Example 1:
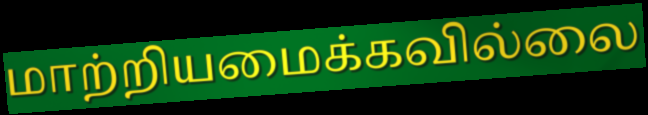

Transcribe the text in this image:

மாற்றியமைக்கவில்லை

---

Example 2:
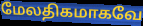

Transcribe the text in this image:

மேலதிகமாகவே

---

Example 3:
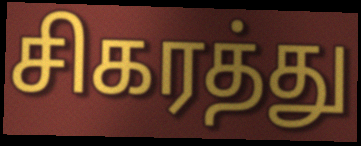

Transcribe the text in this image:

சிகரத்து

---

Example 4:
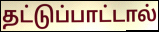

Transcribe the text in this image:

தட்டுப்பாட்டால்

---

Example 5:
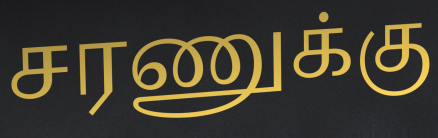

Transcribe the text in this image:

சரணுக்கு